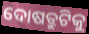
ଦୋଷତ୍ରୁଟିକୁ